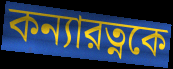
কন্যারত্নকে